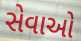
સેવાઓ